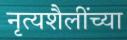
नृत्यशैलींच्या